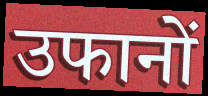
उफानों